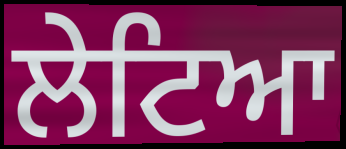
ਲੇਟਿਆ